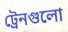
ট্রেনগুলো